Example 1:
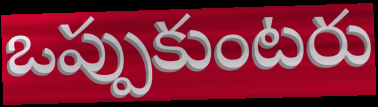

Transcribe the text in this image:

ఒప్పుకుంటరు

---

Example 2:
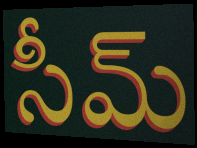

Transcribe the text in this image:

సీమ్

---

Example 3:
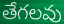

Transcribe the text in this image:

తేగలవు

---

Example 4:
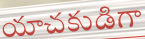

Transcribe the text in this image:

యాచకుడిగా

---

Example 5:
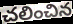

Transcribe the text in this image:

చలించిన